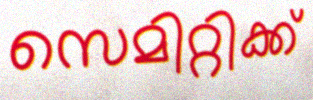
സെമിറ്റിക്ക്